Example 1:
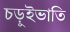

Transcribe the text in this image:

চড়ুইভাতি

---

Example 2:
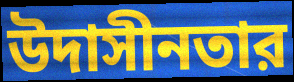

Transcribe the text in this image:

উদাসীনতার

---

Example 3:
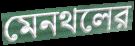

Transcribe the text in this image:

মেনথলের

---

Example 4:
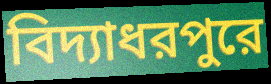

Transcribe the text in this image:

বিদ্যাধরপুরে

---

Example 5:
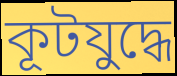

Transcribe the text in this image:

কূটযুদ্ধে